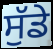
ਸੁੱਡੇ